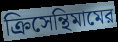
ক্রিসেন্থিমামের